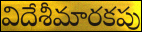
విదేశీమారకపు